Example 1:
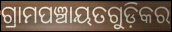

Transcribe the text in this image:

ଗ୍ରାମପଞ୍ଚାୟତଗୁଡ଼ିକର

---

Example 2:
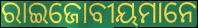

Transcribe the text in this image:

ରାଇଜୋବୀୟମାନେ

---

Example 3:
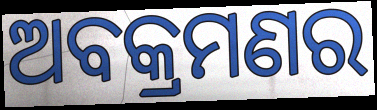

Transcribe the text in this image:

ଅବକ୍ରମଣର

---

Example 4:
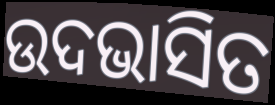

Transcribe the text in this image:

ଉଦଭାସିତ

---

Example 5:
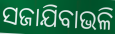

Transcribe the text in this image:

ସଜାଯିବାଭଳି